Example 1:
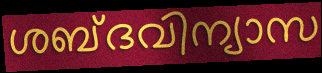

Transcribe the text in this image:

ശബ്ദവിന്യാസ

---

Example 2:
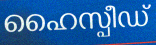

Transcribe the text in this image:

ഹൈസ്പീഡ്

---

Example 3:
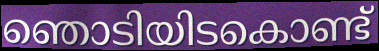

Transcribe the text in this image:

ഞൊടിയിടകൊണ്ട്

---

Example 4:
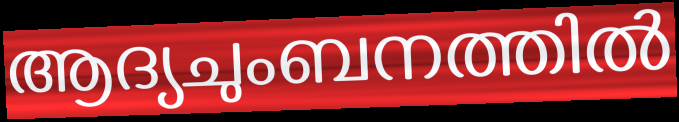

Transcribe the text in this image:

ആദ്യചുംബനത്തിൽ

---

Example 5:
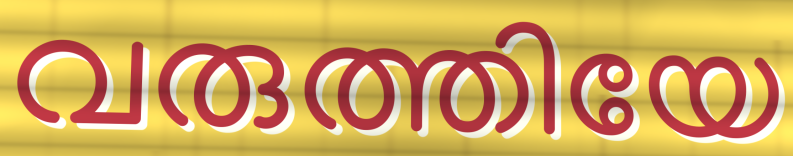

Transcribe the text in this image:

വരുത്തിയേ